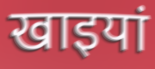
खाइयां